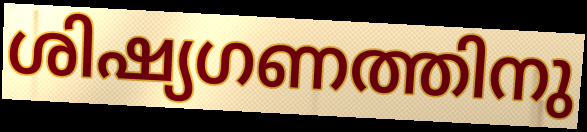
ശിഷ്യഗണത്തിനു